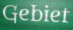
Gebiet